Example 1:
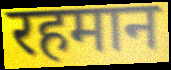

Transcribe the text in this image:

रहमान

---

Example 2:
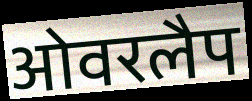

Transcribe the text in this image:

ओवरलैप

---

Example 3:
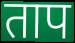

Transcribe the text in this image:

ताप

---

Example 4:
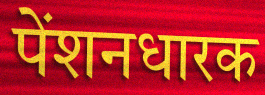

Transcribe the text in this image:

पेंशनधारक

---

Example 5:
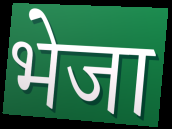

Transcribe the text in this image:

भेजा